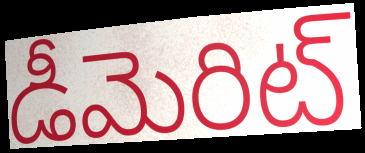
డీమెరిట్